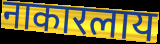
नाकारलाय